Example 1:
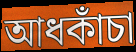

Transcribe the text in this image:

আধকাঁচা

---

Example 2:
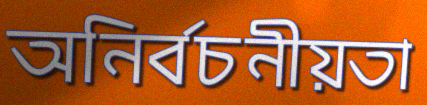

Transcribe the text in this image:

অনির্বচনীয়তা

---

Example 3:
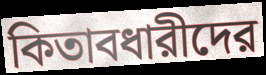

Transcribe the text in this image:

কিতাবধারীদের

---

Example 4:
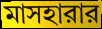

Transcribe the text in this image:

মাসহারার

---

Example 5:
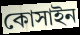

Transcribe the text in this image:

কোসাইন